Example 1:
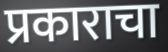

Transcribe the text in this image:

प्रकाराचा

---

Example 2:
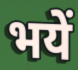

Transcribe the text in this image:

भयें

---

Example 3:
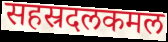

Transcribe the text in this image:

सहस्रदलकमल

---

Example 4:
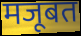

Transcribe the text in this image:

मजूबत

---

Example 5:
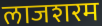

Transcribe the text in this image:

लाजशरम